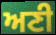
ਅਣੀ